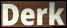
Derk